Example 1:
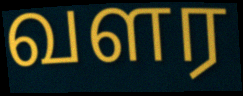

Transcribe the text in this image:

வளர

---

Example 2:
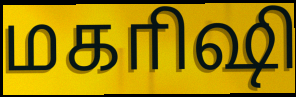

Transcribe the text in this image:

மகரிஷி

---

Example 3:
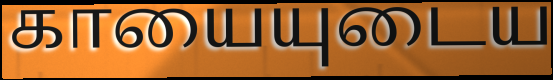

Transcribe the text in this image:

காயையுடைய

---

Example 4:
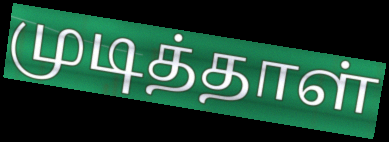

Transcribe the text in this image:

முடித்தாள்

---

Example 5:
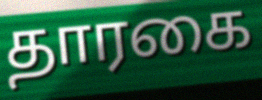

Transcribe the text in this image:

தாரகை